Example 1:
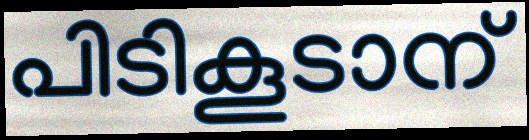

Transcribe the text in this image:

പിടികൂടാന്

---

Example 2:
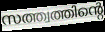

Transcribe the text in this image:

സത്ത്വത്തിന്റെ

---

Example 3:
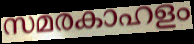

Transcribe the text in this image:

സമരകാഹളം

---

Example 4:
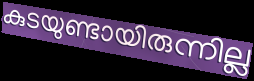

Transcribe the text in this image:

കുടയുണ്ടായിരുന്നില്ല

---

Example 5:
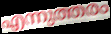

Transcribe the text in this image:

എന്നുത്തരം